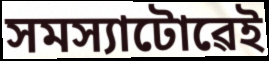
সমস্যাটোৱেই